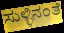
ಸುಳ್ಳಿನಂತೆ